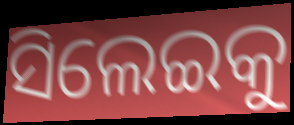
ସିଲେଇକୁ